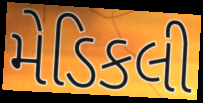
મેડિકલી